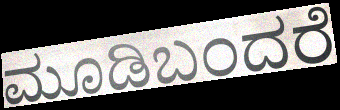
ಮೂಡಿಬಂದರೆ